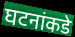
घटनांकडे